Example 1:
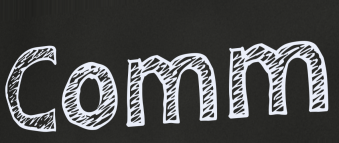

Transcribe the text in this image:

Comm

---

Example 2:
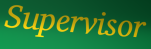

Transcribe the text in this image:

Supervisor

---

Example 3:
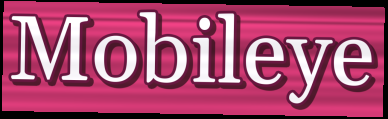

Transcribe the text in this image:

Mobileye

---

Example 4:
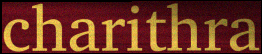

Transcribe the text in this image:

charithra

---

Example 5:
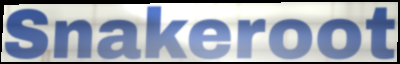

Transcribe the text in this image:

Snakeroot